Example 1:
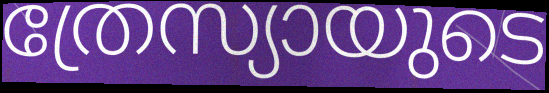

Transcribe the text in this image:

ത്രേസ്യായുടെ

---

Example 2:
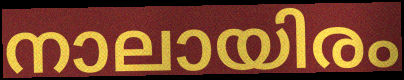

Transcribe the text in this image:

നാലായിരം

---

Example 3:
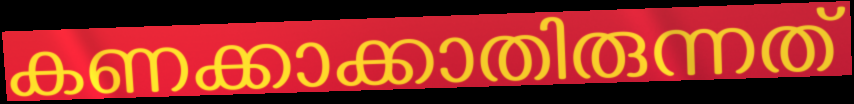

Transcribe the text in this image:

കണക്കാക്കാതിരുന്നത്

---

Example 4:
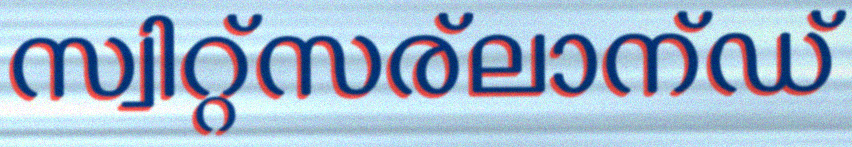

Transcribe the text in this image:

സ്വിറ്റ്സര്ലാന്ഡ്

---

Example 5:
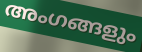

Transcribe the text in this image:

അംഗങ്ങളും